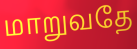
மாறுவதே